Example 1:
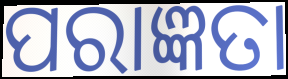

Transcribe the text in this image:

ପରାଜ୍ଞତା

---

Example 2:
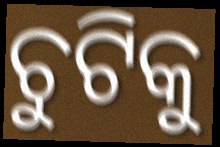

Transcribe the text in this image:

ଚୁଟିକୁ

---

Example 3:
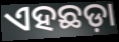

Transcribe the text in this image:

ଏହଛଡ଼ା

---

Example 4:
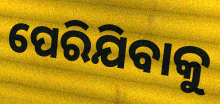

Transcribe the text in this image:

ପେରିଯିବାକୁ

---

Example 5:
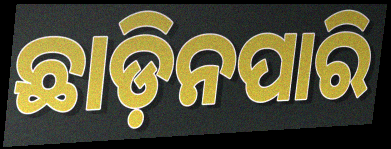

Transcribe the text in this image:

ଛାଡ଼ିନପାରି